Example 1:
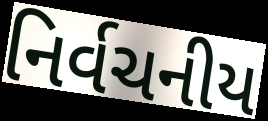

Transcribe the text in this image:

નિર્વચનીય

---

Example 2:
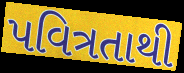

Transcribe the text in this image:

પવિત્રતાથી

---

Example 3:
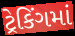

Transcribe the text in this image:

ટ્રેકિંગમાં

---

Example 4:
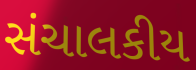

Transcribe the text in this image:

સંચાલકીય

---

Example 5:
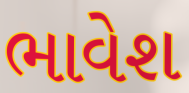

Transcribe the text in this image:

ભાવેશ